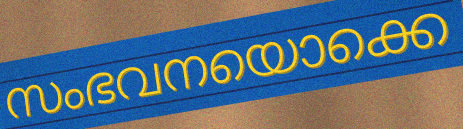
സംഭവനയൊക്കെ